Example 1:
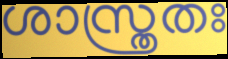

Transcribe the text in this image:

ശാസ്ത്രതഃ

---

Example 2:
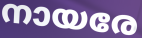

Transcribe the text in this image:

നായരേ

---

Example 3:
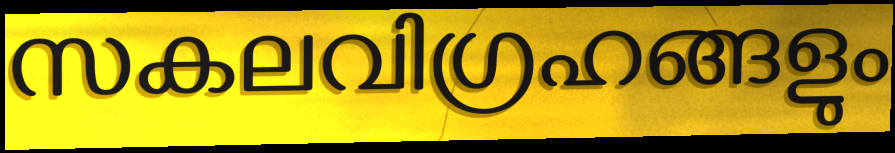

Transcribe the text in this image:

സകലവിഗ്രഹങ്ങളും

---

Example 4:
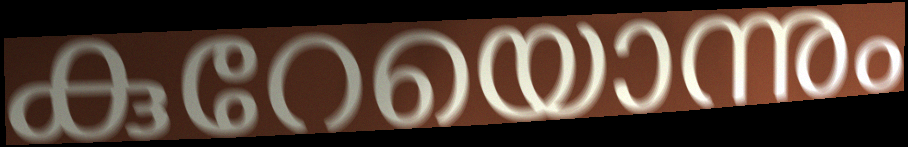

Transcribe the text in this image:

കുറേയൊന്നും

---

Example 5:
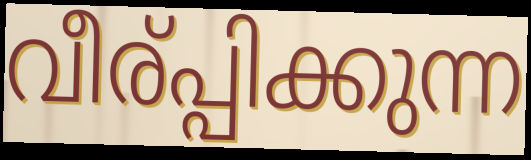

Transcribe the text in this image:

വീര്പ്പിക്കുന്ന